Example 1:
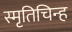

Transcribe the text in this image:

स्मृतिचिन्ह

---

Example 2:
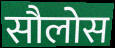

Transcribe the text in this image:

सौलोस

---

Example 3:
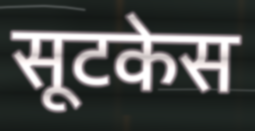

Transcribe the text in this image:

सूटकेस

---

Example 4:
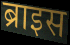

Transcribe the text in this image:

ब्राइस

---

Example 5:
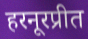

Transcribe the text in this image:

हरनूरप्रीत